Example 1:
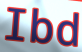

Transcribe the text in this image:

Ibd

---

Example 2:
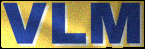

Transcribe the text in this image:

VLM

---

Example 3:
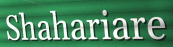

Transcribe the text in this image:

Shahariare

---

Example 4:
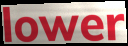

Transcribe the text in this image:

lower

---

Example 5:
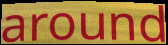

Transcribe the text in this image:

around